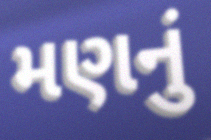
મણનું